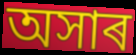
অসাৰ